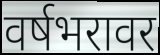
वर्षभरावर